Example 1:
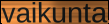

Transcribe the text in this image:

vaikunta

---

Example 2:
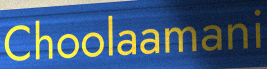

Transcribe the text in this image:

Choolaamani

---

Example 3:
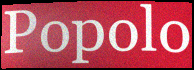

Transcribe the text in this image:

Popolo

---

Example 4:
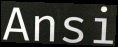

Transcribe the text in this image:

Ansi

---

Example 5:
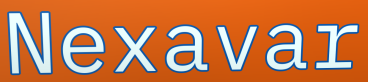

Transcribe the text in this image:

Nexavar